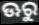
ଊରୁ